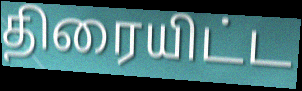
திரையிட்ட